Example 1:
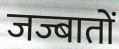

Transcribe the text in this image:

जज्बातों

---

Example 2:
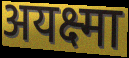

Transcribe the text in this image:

अयक्ष्मा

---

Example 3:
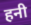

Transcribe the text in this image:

हनी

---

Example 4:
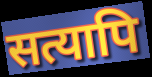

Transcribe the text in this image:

सत्यापि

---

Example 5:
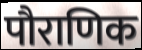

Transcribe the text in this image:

पौराणिक